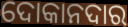
ଦୋକାନଦାର